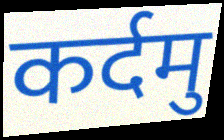
कर्दमु